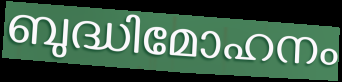
ബുദ്ധിമോഹനം